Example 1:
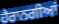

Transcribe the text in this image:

ਹੈਰਾਨਗੀਆਂ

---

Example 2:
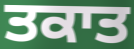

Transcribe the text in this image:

ਤਕਾਤ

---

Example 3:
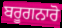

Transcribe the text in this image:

ਬਰੂਗਨਾਰੋ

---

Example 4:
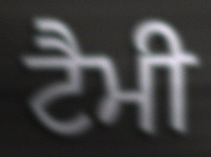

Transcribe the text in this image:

ਟੈਮੀ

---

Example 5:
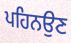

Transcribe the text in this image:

ਪਹਿਨਉਣ